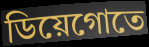
ডিয়েগোতে